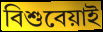
বিশুবেয়াই